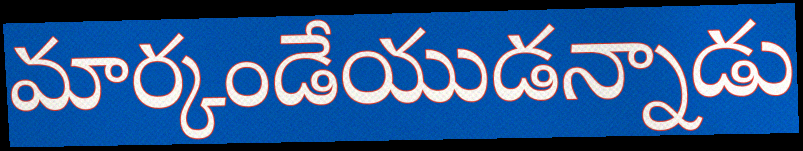
మార్కండేయుడన్నాడు